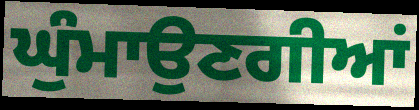
ਘੁੰਮਾਉਣਗੀਆਂ